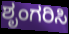
ಶೃಂಗರಿಸಿ